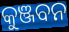
କୁଞ୍ଜବନ